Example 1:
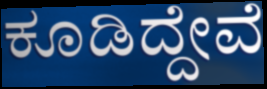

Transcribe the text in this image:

ಕೂಡಿದ್ದೇವೆ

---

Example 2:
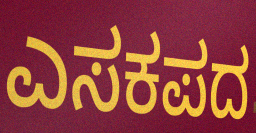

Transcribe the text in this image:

ಎಸಕಪದ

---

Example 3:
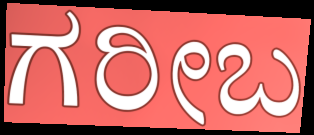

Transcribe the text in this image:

ಗರೀಬ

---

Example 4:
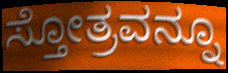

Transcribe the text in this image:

ಸ್ತೋತ್ರವನ್ನೂ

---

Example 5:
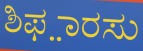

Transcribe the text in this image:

ಶಿಫ಼ಾರಸು